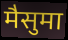
मैसुमा